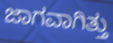
ಜಾಗವಾಗಿತ್ತು